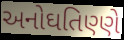
અનોઘતિણ્ણે